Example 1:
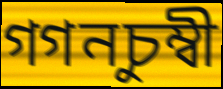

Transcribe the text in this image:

গগনচুম্বী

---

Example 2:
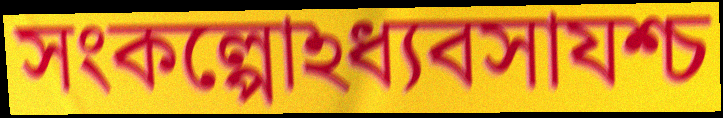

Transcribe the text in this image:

সংকল্পোঽধ্যবসাযশ্চ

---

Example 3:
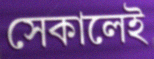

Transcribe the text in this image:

সেকালেই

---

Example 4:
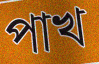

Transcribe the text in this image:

পাখ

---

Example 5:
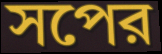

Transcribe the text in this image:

সপের